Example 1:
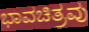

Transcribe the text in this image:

ಭಾವಚಿತ್ರವು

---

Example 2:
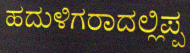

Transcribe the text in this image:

ಹದುಳಿಗರಾದಲ್ಲಿಪ್ಪ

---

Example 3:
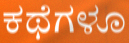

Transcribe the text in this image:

ಕಥೆಗಳೂ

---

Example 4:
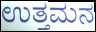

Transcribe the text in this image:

ಉತ್ತಮನ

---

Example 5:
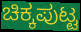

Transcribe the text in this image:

ಚಿಕ್ಕಪುಟ್ಟ